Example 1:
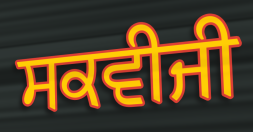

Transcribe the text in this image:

ਸਕਵੀਜੀ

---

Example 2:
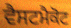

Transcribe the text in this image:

ਵੈਸਟਮੈਕੋਟ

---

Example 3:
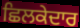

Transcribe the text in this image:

ਛਿਲਕੇਦਾਰ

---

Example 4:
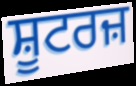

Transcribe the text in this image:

ਸ਼ੂਟਰਜ਼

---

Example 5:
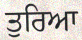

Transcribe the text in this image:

ਤੁਰਿਆ